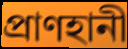
প্রাণহানী